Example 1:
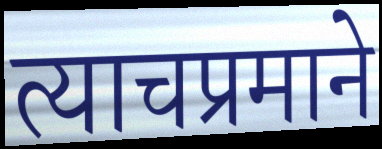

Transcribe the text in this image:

त्याचप्रमाने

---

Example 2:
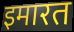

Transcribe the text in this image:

इमारत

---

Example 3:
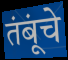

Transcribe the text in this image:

तंबूंचे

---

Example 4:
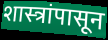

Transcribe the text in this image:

शास्त्रांपासून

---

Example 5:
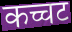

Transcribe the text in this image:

कच्चट